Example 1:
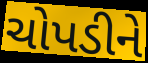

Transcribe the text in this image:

ચોપડીને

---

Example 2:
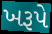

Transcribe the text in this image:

ખરૂપે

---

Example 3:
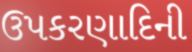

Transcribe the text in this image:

ઉપકરણાદિની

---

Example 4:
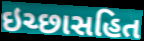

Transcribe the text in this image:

ઇચ્છાસહિત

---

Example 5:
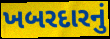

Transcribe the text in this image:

ખબરદારનું